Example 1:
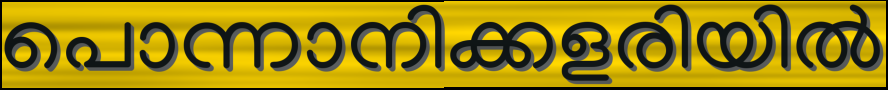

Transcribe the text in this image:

പൊന്നാനിക്കളരിയിൽ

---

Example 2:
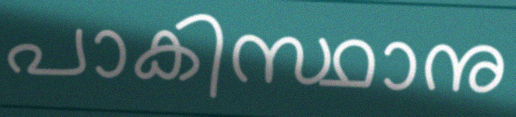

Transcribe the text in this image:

പാകിസ്ഥാനു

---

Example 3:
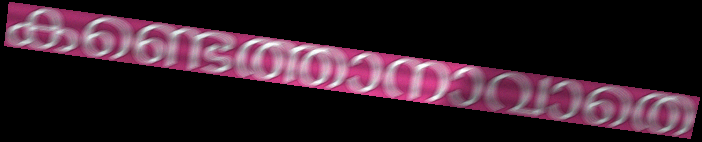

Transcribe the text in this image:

കണ്ടെത്താനാവാതെ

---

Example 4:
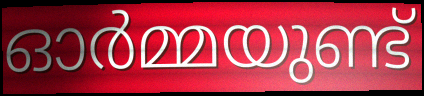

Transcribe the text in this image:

ഓർമ്മയുണ്ട്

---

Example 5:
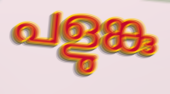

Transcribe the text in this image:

പളുങ്കു